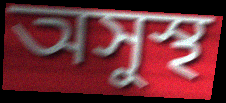
অসুস্থ